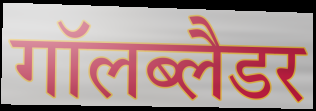
गॉलब्लैडर